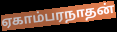
ஏகாம்பரநாதன்